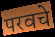
परवचे